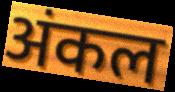
अंकल